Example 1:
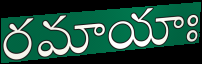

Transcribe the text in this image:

రమాయాః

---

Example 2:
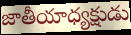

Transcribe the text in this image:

జాతీయాధ్యక్షుడు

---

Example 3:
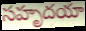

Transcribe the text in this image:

సహృదయా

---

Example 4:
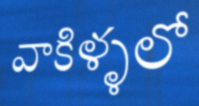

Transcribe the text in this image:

వాకిళ్ళలో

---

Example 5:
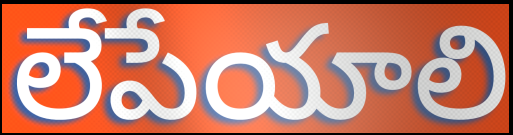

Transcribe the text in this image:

లేపేయాలి